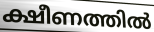
ക്ഷീണത്തിൽ